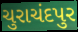
ચુરાચંદપુર